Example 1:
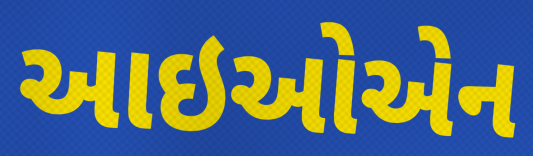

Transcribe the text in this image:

આઇઓએન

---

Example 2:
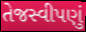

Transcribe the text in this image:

તેજસ્વીપણું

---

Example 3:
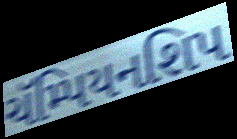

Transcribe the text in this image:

ચૅમ્પિયનશિપ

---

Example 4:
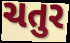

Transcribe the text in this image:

ચતુર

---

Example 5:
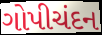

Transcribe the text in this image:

ગોપીચંદન